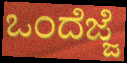
ಒಂದೆಜ್ಜೆ